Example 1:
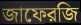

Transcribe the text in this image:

জাফেরজি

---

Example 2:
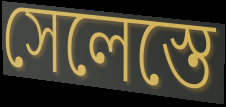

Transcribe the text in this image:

সেলেস্তে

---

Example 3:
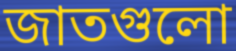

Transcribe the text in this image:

জাতগুলো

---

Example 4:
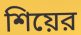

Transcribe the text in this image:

শিয়ের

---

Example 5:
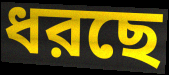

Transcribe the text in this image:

ধরছে